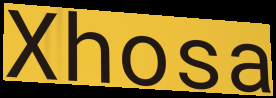
Xhosa